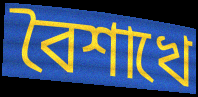
বৈশাখে